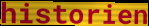
historien